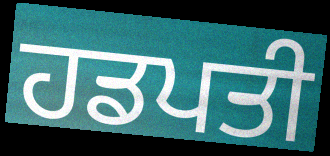
ਹਡਪਤੀ